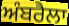
ਅੰਬਰੈਲਾ